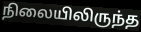
நிலையிலிருந்த